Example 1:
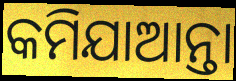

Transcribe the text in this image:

କମିଯାଆନ୍ତା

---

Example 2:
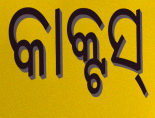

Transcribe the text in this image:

କାକ୍ଟସ୍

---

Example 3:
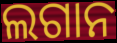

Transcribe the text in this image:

ଲଗାନ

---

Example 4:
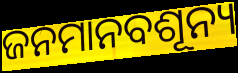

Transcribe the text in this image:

ଜନମାନବଶୂନ୍ୟ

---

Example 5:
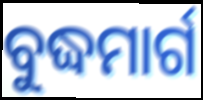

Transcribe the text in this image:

ବୁଦ୍ଧମାର୍ଗ